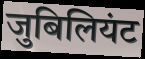
जुबिलियंट